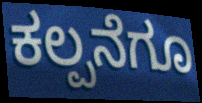
ಕಲ್ಪನೆಗೂ